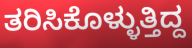
ತರಿಸಿಕೊಳ್ಳುತ್ತಿದ್ದ